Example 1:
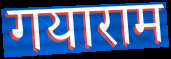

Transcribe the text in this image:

गयाराम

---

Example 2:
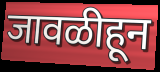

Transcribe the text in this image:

जावळीहून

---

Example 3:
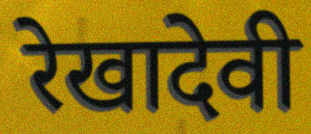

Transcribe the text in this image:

रेखादेवी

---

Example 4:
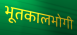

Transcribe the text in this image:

भूतकालभोगी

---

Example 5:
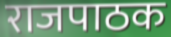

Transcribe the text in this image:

राजपाठक